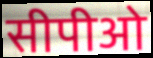
सीपीओ